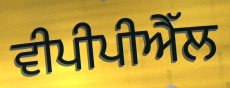
ਵੀਪੀਪੀਐੱਲ